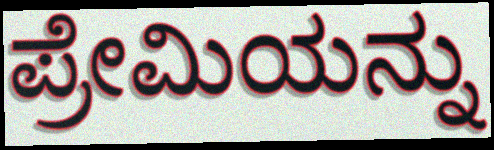
ಪ್ರೇಮಿಯನ್ನು